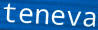
teneva